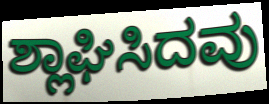
ಶ್ಲಾಘಿಸಿದವು